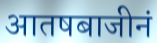
आतषबाजीनं